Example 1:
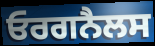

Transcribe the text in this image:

ਓਰਗਨੈਲਸ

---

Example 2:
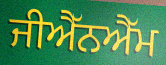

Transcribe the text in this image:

ਜੀਐੱਨਐੱਮ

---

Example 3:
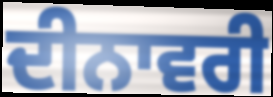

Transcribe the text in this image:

ਦੀਨਾਵਰੀ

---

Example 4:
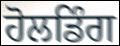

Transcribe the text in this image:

ਹੋਲਡਿੰਗ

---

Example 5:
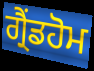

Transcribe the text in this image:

ਗ੍ਰੈਂਡਹੋਮ